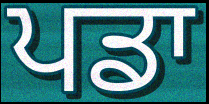
ਪਡਾ